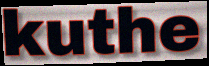
kuthe